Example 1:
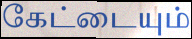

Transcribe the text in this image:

கேட்டையும்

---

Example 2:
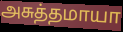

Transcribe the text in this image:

அசுத்தமாயா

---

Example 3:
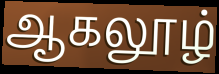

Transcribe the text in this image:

ஆகலூழ்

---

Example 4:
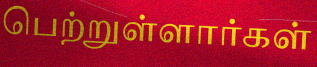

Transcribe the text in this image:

பெற்றுள்ளார்கள்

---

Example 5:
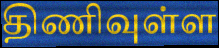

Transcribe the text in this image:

திணிவுள்ள